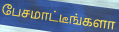
பேசமாட்டீங்களா